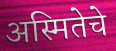
अस्मितेचे